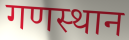
गणस्थान